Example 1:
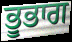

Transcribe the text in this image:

ਭੂਭਾਗ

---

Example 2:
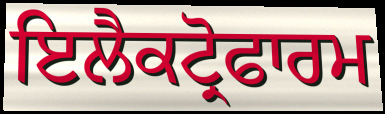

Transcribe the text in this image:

ਇਲੈਕਟ੍ਰੋਫਾਰਮ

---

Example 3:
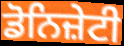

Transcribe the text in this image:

ਡੋਨਿਜ਼ੇਟੀ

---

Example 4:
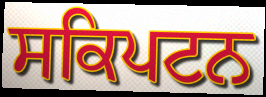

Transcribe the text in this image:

ਸਕਿਪਟਨ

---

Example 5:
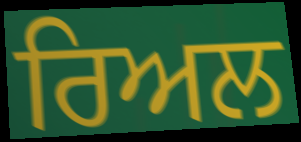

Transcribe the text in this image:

ਰਿਅਲ